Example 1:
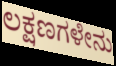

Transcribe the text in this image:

ಲಕ್ಷಣಗಳೇನು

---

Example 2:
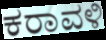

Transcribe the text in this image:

ಕರಾವಳಿ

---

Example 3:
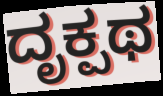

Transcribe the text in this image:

ದೃಕ್ಪಥ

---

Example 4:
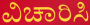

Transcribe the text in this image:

ವಿಚಾರಿಸಿ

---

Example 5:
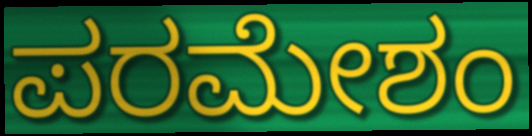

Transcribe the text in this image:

ಪರಮೇಶಂ